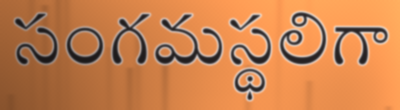
సంగమస్థలిగా